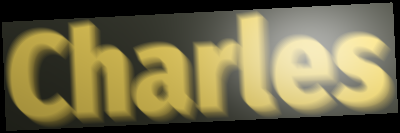
Charles